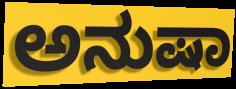
ಅನುಷಾ